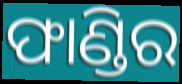
ଫାଣ୍ଡିର